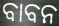
ବାବନ